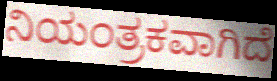
ನಿಯಂತ್ರಕವಾಗಿದೆ